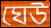
ঘেউ